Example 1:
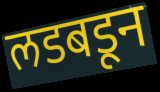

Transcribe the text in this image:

लडबडून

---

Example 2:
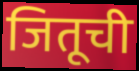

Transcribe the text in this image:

जितूची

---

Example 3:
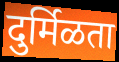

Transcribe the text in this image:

दुर्मिळता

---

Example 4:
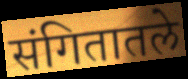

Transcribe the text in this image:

संगितातले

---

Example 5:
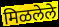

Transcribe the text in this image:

मिळलेले